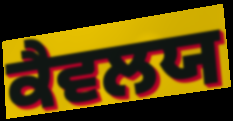
ਕੈਵਲਯ